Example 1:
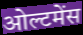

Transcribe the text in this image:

ओल्टमेंस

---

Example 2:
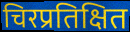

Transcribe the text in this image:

चिरप्रतिक्षित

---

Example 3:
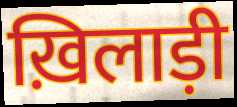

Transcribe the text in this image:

ख़िलाड़ी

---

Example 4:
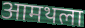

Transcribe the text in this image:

आमथला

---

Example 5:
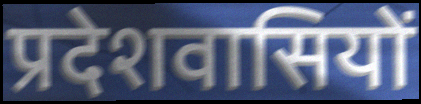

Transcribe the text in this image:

प्रदेशवासियों